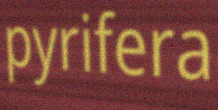
pyrifera